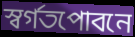
স্বর্গতপোবনে